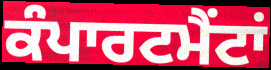
ਕੰਪਾਰਟਮੈਂਟਾਂ